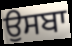
ਉਸਬਾ